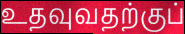
உதவுவதற்குப்